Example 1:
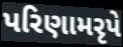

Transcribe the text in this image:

પરિણામરૃપે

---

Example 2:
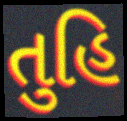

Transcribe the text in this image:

તુહિ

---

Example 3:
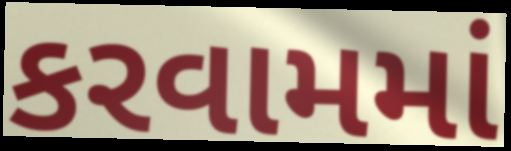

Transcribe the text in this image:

કરવામમાં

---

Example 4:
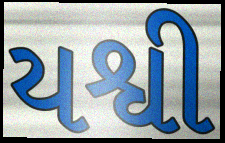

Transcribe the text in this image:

યશ્વી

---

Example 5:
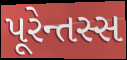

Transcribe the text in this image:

પૂરેન્તસ્સ